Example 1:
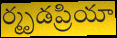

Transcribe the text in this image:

ర్మృడప్రియా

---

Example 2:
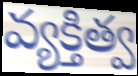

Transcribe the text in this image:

వ్యక్తిత్వ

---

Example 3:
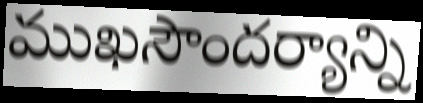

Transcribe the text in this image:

ముఖసౌందర్యాన్ని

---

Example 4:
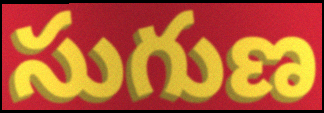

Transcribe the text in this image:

సుగుణ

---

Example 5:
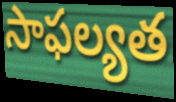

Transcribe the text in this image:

సాఫల్యత